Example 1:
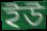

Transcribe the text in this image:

ইউ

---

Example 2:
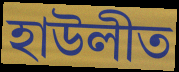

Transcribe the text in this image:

হাউলীত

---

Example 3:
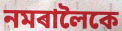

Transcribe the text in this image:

নমৰালৈকে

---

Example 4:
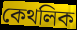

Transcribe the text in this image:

কেথলিক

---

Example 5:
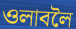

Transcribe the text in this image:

ওলাবলৈ